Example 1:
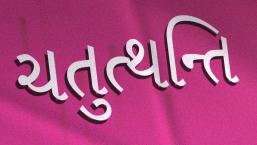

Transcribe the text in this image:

ચતુત્થન્તિ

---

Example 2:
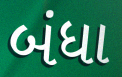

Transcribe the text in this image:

બંધા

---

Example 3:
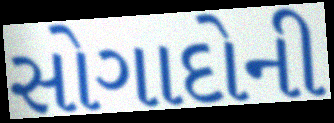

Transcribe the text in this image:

સોગાદોની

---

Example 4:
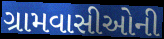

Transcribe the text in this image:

ગ્રામવાસીઓની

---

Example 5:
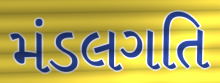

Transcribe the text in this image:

મંડલગતિ